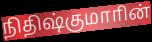
நிதிஷ்குமாரின்